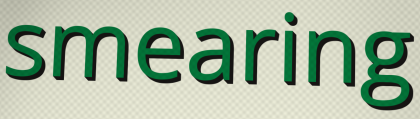
smearing